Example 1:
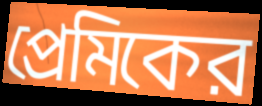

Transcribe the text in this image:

প্রেমিকের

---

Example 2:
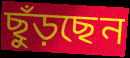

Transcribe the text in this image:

ছুঁড়ছেন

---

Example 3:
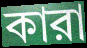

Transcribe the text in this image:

কারা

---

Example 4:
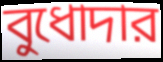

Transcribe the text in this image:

বুধোদার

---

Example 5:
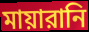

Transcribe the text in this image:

মায়ারানি